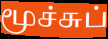
மூச்சுப்